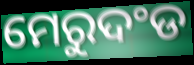
ମେରୁଦଂଡ